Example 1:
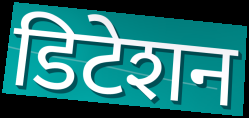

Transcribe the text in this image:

डिटेशन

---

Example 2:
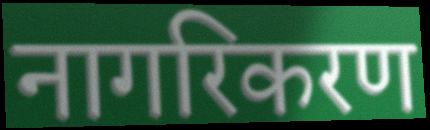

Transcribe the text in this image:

नागरिकरण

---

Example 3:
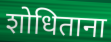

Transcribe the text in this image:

शोधिताना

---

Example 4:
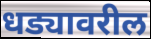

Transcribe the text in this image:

धड्यावरील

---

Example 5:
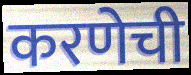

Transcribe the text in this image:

करणेची